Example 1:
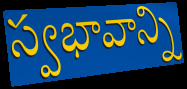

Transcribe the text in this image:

స్వభావాన్ని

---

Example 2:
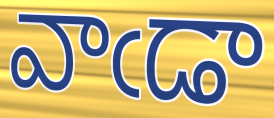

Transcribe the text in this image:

వాఁడా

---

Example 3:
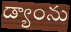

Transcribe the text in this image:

డ్యాంను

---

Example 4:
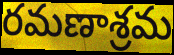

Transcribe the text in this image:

రమణాశ్రమ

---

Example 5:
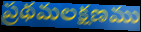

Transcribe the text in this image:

ప్రథమలక్షణము